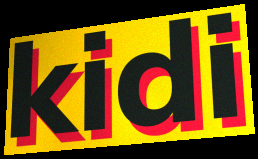
kidi